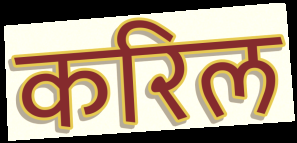
करिल